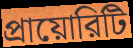
প্রায়োরিটি